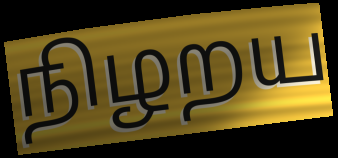
நிழறய